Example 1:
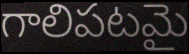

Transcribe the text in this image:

గాలిపటమై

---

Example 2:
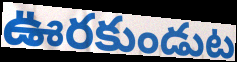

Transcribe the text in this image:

ఊరకుండుట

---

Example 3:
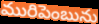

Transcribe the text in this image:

మురిపెంబును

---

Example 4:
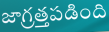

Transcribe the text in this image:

జాగ్రత్తపడింది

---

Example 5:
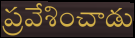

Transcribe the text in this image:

ప్రవేశించాడు